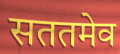
सततमेव